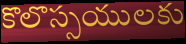
కొలొస్సయులకు